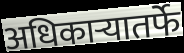
अधिकाऱ्यातर्फे